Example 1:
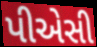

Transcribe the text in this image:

પીએસી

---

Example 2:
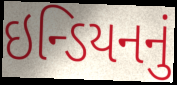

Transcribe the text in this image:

ઇન્ડિયનનું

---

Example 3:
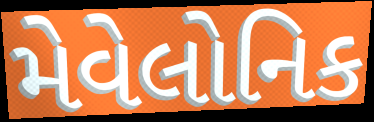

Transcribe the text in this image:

મેવેલોનિક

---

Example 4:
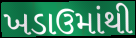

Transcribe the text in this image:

ખડાઉમાંથી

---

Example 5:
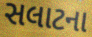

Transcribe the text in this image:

સલાટના